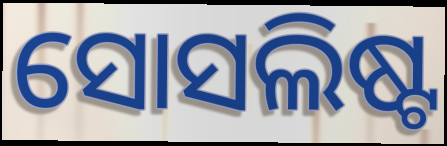
ସୋସଲିଷ୍ଟ